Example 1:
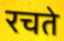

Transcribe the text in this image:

रचते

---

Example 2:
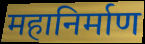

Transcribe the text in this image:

महानिर्माण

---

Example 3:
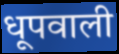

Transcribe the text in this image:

धूपवाली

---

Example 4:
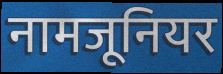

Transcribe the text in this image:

नामजूनियर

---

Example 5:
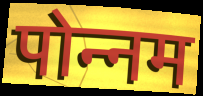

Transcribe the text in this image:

पोन्नम